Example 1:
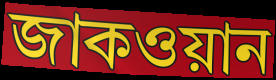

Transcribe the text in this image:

জাকওয়ান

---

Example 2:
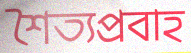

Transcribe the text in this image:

শৈত্যপ্রবাহ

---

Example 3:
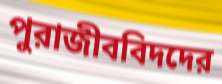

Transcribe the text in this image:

পুরাজীববিদদের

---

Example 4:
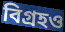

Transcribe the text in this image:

বিগ্রহও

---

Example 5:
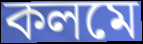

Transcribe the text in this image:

কলমে